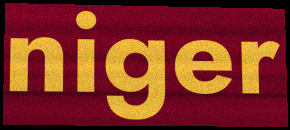
niger